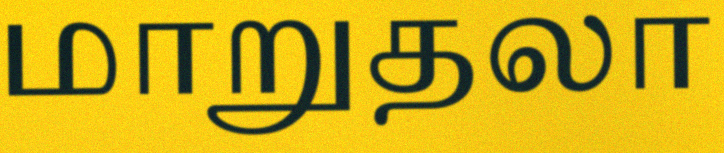
மாறுதலா